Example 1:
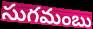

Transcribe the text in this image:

సుగమంబు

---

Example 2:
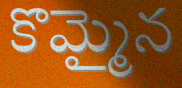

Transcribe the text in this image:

కొమ్మైన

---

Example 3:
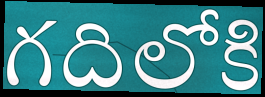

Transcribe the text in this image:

గదిలోకి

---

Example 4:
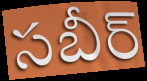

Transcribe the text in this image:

సబీర్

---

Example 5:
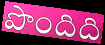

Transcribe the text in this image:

పొందిది